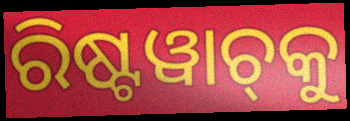
ରିଷ୍ଟୱାଚ୍‌କୁ